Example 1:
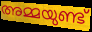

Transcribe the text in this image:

അമ്മയുണ്ട്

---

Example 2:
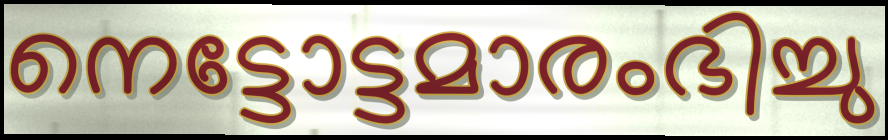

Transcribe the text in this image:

നെട്ടോട്ടമാരംഭിച്ചു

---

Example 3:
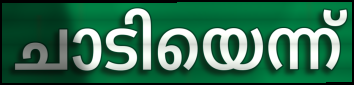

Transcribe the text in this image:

ചാടിയെന്ന്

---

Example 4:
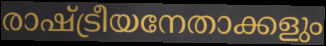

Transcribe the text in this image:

രാഷ്ട്രീയനേതാക്കളും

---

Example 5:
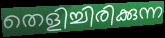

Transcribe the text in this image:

തെളിച്ചിരിക്കുന്ന